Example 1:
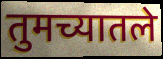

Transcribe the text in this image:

तुमच्यातले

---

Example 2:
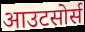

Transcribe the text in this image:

आउटसोर्स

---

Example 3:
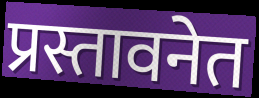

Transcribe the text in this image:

प्रस्तावनेत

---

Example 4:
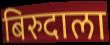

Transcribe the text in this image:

बिरुदाला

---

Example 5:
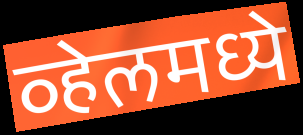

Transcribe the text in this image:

व्हेलमध्ये